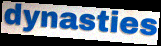
dynasties